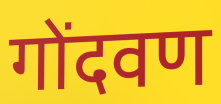
गोंदवण